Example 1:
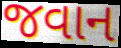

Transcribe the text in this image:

જવાન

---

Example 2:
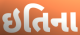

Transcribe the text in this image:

ઇતિના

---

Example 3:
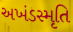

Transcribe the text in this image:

અખંડસ્મૃતિ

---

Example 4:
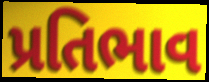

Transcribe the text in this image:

પ્રતિભાવ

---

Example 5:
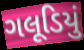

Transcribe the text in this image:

ગલૂડિયું